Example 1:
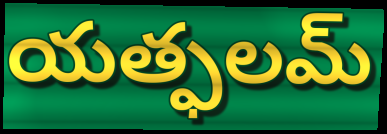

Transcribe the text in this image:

యత్ఫలమ్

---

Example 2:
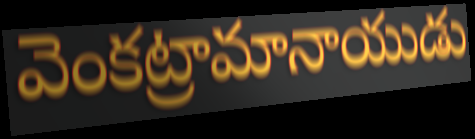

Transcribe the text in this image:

వెంకట్రామానాయుడు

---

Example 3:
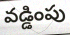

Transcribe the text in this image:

వడ్డింపు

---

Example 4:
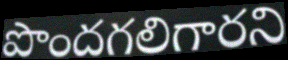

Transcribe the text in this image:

పొందగలిగారని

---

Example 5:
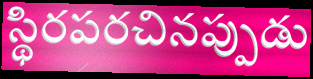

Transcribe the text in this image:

స్థిరపరచినప్పుడు